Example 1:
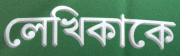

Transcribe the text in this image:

লেখিকাকে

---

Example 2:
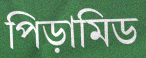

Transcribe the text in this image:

পিড়ামিড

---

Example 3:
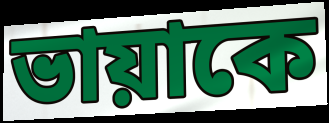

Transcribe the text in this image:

ভায়াকে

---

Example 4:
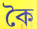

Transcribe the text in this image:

কৈ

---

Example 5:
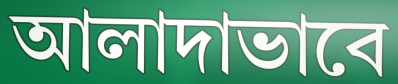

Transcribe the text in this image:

আলাদাভাবে